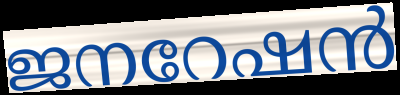
ജനറേഷൻ